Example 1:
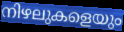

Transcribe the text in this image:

നിഴലുകളെയും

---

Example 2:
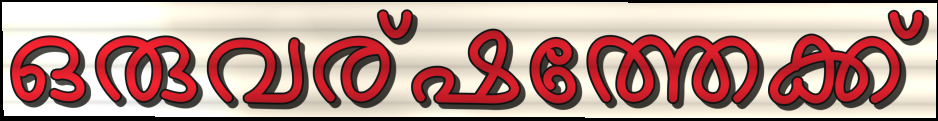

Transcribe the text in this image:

ഒരുവര്ഷത്തേക്ക്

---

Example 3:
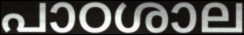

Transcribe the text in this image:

പാഠശാല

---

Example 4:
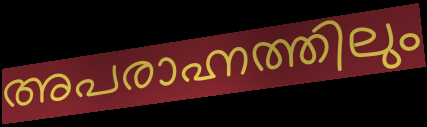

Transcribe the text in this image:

അപരാഹ്നത്തിലും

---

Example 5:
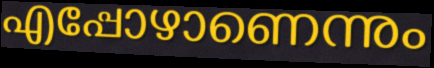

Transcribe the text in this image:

എപ്പോഴാണെന്നും